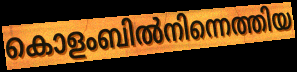
കൊളംബിൽനിന്നെത്തിയ